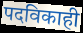
पदविकाही